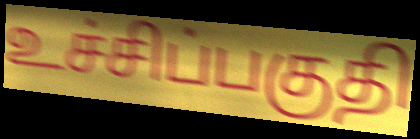
உச்சிப்பகுதி